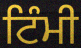
ਟਿੰਮੀ